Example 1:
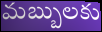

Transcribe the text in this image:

మబ్బులకు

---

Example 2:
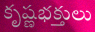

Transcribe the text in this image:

కృష్ణభక్తులు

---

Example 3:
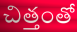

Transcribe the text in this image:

చిత్తంతో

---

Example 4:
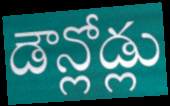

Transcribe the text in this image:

డౌన్లోడ్లు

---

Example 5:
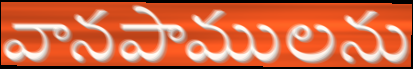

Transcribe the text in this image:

వానపాములను